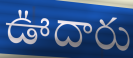
ఊదారు